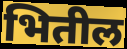
भितील